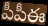
పీపీఈ